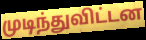
முடிந்துவிட்டன